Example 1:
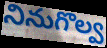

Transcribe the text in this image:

నినుగొల్వ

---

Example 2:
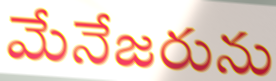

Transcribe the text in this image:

మేనేజరును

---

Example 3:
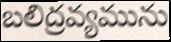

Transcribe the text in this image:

బలిద్రవ్యమును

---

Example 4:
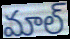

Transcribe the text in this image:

మాల్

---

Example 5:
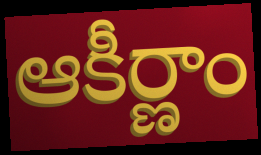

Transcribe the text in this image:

ఆకీర్ణాం